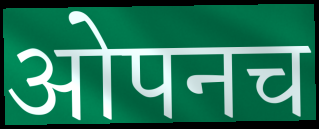
ओपनच